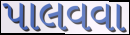
પાલવવા